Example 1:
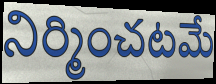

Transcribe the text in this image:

నిర్మించటమే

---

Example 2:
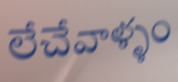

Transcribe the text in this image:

లేచేవాళ్ళం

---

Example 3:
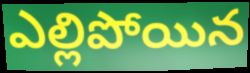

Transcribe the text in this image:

ఎల్లిపోయిన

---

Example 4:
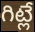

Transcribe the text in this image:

గిట్లే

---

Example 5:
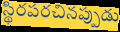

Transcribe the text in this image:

స్థిరపరచినప్పుడు